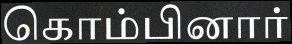
கொம்பினார்